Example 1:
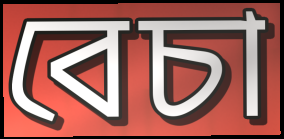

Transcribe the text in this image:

বেচা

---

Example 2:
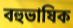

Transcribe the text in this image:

বহুভাষিক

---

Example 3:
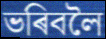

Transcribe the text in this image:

ভৰিবলৈ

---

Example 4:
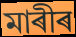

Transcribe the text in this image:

মাৰীৰ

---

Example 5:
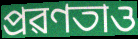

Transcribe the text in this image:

প্ৰৱণতাও